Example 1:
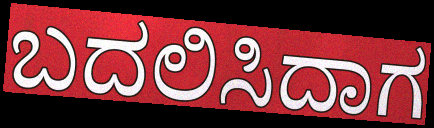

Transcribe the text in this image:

ಬದಲಿಸಿದಾಗ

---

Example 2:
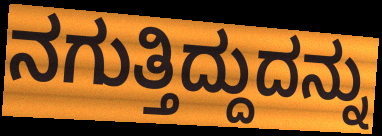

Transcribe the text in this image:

ನಗುತ್ತಿದ್ದುದನ್ನು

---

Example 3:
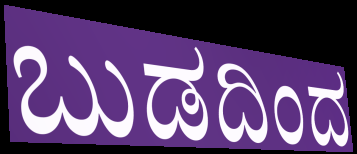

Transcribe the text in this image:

ಬುಡದಿಂದ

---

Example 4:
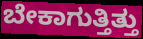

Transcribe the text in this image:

ಬೇಕಾಗುತ್ತಿತ್ತು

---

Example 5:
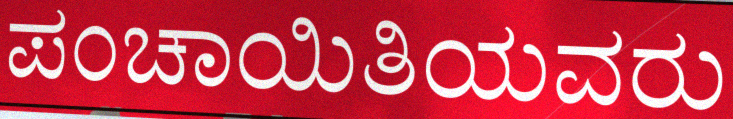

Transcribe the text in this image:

ಪಂಚಾಯಿತಿಯವರು